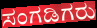
ಸಂಗಡಿಗರು